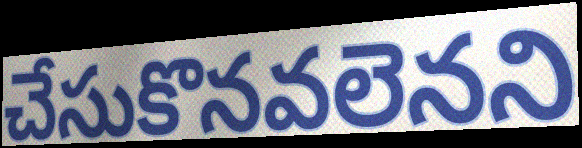
చేసుకొనవలెనని